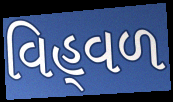
વિહ્‌વળ